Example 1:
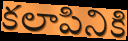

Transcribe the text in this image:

కలాపినికి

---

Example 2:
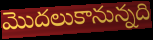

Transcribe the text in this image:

మొదలుకానున్నది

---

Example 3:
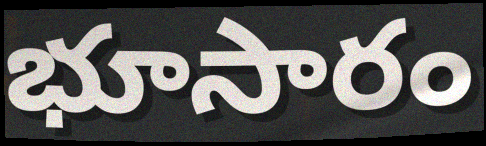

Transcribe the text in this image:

భూసారం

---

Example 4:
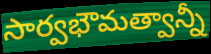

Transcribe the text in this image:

సార్వభౌమత్వాన్నీ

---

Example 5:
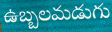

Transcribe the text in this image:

ఉబ్బలమడుగు